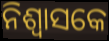
ନିଶ୍ୱାସକେ